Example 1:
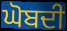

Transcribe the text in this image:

ਘੋਬਦੀ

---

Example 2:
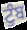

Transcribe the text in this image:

ਟੁੰਬ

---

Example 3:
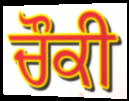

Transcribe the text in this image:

ਚੌਕੀ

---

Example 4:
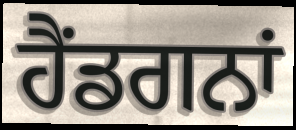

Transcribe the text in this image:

ਹੈਂਡਗਨਾਂ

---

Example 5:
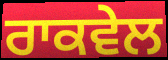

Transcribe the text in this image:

ਰਾਕਵੇਲ